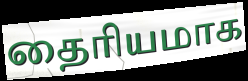
தைரியமாக